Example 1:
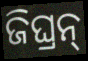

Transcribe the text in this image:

ଜିଘ୍ରନ୍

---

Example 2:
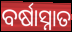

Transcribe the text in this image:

ବର୍ଷାସ୍ନାତ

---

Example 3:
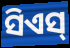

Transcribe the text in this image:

ସିଏସ୍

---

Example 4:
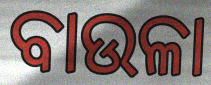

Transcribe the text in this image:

ବାଉଳା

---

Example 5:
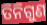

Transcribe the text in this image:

ତିନିଗୁଣ